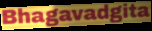
Bhagavadgita